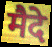
मैदे